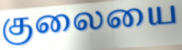
குலையை